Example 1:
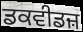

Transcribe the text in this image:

ਡਕਵੀਡਜ਼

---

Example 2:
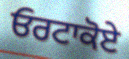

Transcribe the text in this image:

ਓਰਟਾਕੋਏ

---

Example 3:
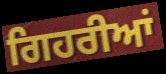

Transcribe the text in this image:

ਗਿਹਰੀਆਂ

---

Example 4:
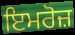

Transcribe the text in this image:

ਇਮਰੋਜ਼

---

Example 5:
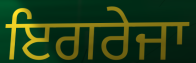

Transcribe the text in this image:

ਇਗਰੇਜਾ